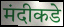
मंदीकडे